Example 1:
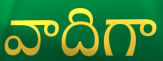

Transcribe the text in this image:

వాదిగా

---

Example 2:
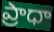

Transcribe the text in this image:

ప్రాధా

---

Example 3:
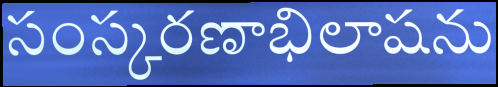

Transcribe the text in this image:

సంస్కరణాభిలాషను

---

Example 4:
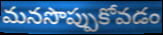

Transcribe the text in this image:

మనసొప్పుకోవడం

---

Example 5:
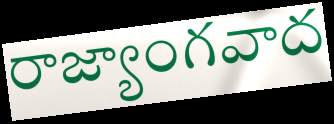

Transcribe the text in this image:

రాజ్యాంగవాద